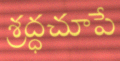
శ్రద్ధచూపే